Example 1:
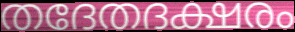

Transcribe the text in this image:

തദേതദക്ഷരം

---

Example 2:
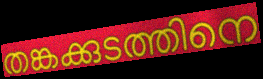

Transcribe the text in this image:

തങ്കക്കുടത്തിനെ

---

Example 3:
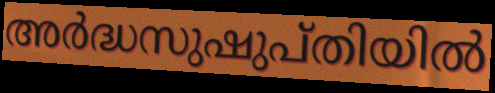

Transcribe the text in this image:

അർദ്ധസുഷുപ്തിയിൽ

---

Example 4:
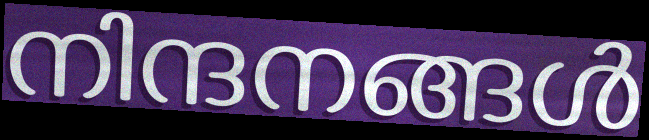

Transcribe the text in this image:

നിന്ദനങ്ങൾ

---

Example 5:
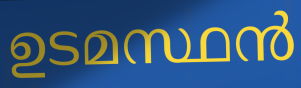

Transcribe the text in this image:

ഉടമസ്ഥൻ